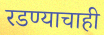
रडण्याचाही